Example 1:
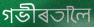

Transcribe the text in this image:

গভীৰতালৈ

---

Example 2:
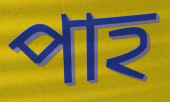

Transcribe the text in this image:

পাহ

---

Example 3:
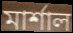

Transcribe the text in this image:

মাৰ্শাল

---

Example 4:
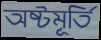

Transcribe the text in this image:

অষ্টমূৰ্তি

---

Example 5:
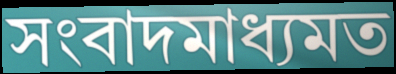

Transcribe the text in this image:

সংবাদমাধ্যমত